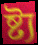
ষ্ট্য